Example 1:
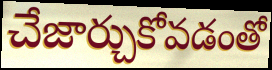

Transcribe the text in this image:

చేజార్చుకోవడంతో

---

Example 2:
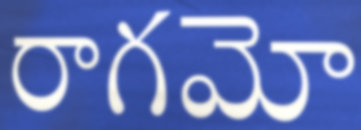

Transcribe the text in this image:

రాగమో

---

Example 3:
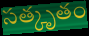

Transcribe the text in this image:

సత్కృతం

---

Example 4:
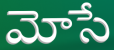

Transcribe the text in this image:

మోసే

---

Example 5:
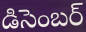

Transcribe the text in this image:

డిసెంబర్